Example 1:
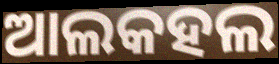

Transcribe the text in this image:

ଆଲକହଲ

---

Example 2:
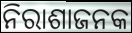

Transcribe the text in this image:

ନିରାଶାଜନକ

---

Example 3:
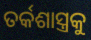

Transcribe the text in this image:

ତର୍କଶାସ୍ତ୍ରକୁ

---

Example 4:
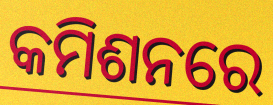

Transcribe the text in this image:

କମିଶନରେ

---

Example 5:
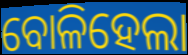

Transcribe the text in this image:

ବୋଳିହେଲା